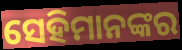
ସେହିମାନଙ୍କର